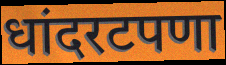
धांदरटपणा